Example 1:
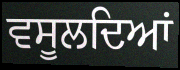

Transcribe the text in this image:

ਵਸੂਲਦਿਆਂ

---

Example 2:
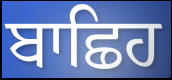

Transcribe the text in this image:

ਬਾਛਿਹ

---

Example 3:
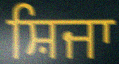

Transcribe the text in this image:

ਸ਼ਿਜਾ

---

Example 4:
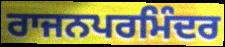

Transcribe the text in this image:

ਰਾਜਨਪਰਮਿੰਦਰ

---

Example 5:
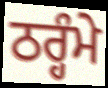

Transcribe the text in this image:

ਠਰ੍ਹੰਮੇ